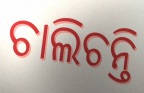
ଚାଲିଚନ୍ତି